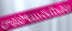
రాకపోయినయెడల